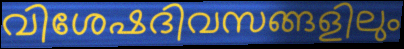
വിശേഷദിവസങ്ങളിലും